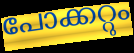
പോക്കറ്റും